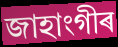
জাহাংগীৰ